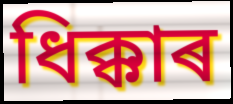
ধিক্কাৰ